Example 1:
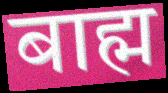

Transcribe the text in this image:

बाह्म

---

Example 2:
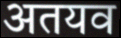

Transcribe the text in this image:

अतयव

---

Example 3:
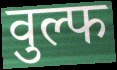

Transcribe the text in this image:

वुल्फ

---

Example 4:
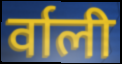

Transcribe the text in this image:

र्वाली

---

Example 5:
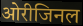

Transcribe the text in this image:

ओरीजिनल